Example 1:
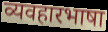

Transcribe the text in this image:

व्यवहारभाषा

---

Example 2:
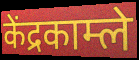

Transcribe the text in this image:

केंद्रकाम्ले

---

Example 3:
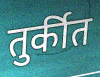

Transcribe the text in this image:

तुर्कीत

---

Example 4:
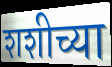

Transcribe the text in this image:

शशीच्या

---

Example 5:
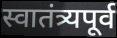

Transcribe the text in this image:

स्वातंत्र्यपूर्व